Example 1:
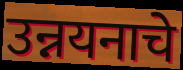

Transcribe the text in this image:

उन्नयनाचे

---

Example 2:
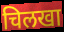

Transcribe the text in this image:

चिलखा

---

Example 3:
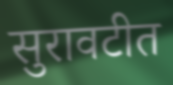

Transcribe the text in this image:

सुरावटीत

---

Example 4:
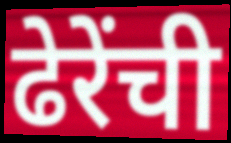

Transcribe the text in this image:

ढेरेंची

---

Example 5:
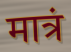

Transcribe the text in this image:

मात्रं